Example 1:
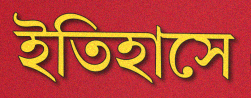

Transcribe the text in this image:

ইতিহাসে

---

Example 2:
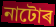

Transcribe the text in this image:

নাটোৰ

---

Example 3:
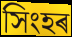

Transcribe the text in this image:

সিংহৰ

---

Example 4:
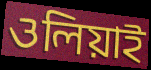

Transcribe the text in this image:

ওলিয়াই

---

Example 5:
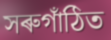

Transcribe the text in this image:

সৰুগাঁঠিত